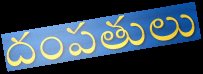
దంపతులు